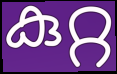
കുറ്റ